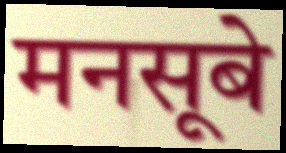
मनसूबे